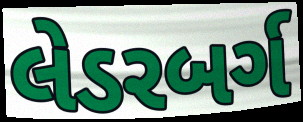
લેડરબર્ગ